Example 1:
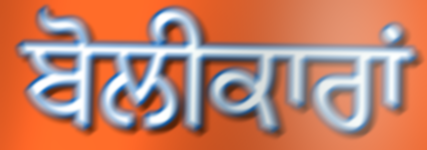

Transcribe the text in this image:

ਬੋਲੀਕਾਰਾਂ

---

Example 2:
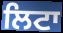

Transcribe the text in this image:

ਲਿਟਾ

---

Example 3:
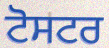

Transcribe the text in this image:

ਟੋਸਟਰ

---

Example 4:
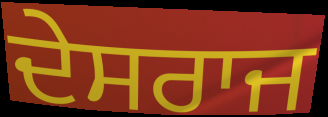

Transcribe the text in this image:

ਦੇਸਰਾਜ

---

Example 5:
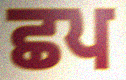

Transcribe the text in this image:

ਛਪ